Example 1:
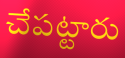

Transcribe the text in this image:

చేపట్టారు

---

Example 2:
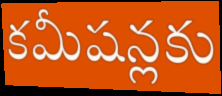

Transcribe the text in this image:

కమీషన్లకు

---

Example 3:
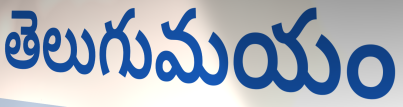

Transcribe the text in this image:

తెలుగుమయం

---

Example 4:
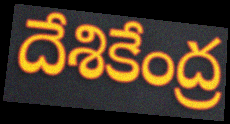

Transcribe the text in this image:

దేశికేంద్ర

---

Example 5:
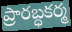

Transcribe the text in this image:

ప్రారబ్ధకర్మ